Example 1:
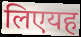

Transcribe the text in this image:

लिएयह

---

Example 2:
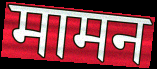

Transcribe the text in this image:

मामन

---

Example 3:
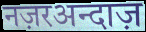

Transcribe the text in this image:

नज़रअन्दाज़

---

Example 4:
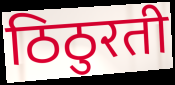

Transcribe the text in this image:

ठिठुरती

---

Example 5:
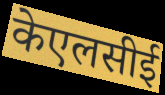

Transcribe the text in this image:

केएलसीई